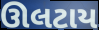
ઊલટાય